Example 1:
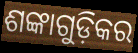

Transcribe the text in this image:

ଶଙ୍କାଗୁଡ଼ିକର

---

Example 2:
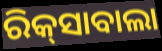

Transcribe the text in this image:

ରିକ୍‍ସାବାଲା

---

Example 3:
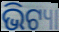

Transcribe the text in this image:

ଭିଟ୍ୟା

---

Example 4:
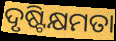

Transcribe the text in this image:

ଦୃଷ୍ଟିକ୍ଷମତା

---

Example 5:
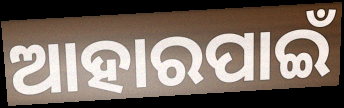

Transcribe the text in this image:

ଆହାରପାଇଁ